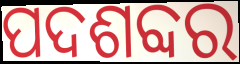
ପଦଶବ୍ଦର